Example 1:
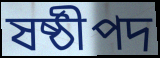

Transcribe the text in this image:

ষষ্ঠীপদ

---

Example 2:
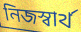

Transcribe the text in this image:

নিজস্বার্থ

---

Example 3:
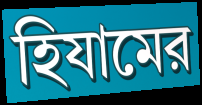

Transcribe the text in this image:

হিযামের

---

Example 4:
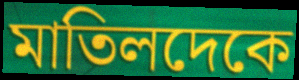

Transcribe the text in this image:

মাতিলদেকে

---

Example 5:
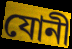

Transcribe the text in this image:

যোনী